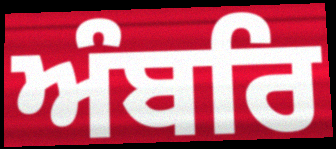
ਅੰਬਰਿ